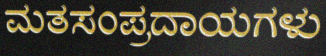
ಮತಸಂಪ್ರದಾಯಗಳು